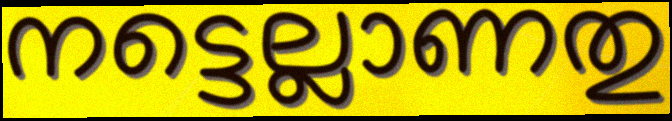
നട്ടെല്ലാണതു